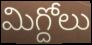
మిగ్దోలు